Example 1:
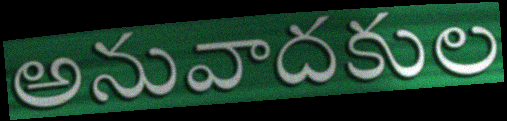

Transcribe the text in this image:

అనువాదకుల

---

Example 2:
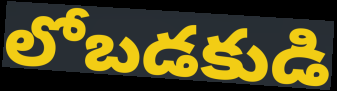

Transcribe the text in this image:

లోబడకుడి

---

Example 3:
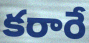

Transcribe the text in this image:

కరారే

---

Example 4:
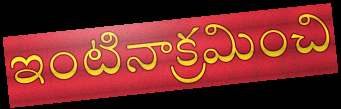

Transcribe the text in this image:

ఇంటినాక్రమించి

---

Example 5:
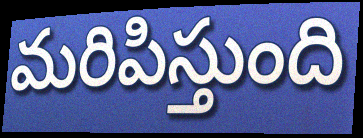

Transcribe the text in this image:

మరిపిస్తుంది